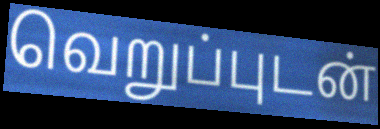
வெறுப்புடன்